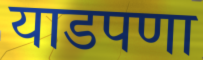
याडपणा